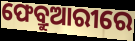
ଫେବ୍ରୁଆରୀରେ